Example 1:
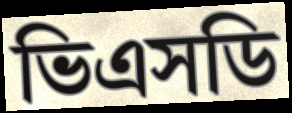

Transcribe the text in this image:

ভিএসডি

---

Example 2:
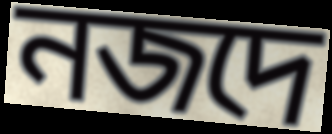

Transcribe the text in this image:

নজদে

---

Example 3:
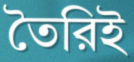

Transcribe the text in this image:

তৈরিই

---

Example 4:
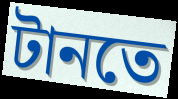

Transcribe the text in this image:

টানতে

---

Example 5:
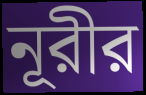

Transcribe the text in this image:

নূরীর